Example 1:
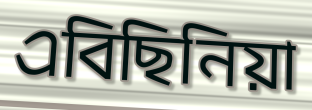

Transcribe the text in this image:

এবিছিনিয়া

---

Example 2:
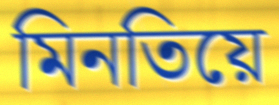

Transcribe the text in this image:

মিনতিয়ে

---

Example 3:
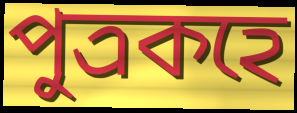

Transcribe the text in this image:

পুত্ৰকহে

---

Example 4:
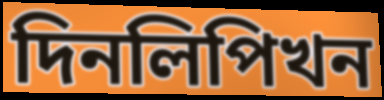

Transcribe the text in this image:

দিনলিপিখন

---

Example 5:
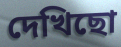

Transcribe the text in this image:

দেখিছো